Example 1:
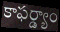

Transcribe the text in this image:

కాఫర్డ్యాం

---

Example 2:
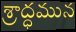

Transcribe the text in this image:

శ్రాద్ధమున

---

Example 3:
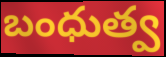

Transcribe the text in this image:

బంధుత్వ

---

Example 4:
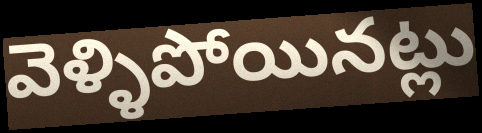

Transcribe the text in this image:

వెళ్ళిపోయినట్లు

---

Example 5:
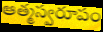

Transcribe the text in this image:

ఆత్మస్వరూపం